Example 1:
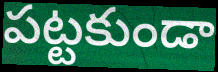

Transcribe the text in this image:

పట్టకుండా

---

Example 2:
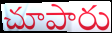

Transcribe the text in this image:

చూపారు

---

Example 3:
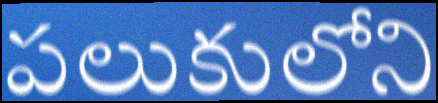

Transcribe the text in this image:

పలుకులోని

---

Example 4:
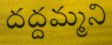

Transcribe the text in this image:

దద్దమ్మని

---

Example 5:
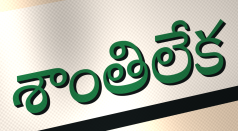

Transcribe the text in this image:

శాంతిలేక